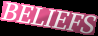
BELIEFS